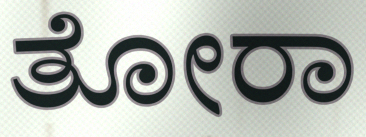
ತೋರಾ